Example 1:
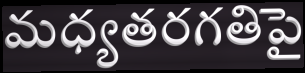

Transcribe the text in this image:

మధ్యతరగతిపై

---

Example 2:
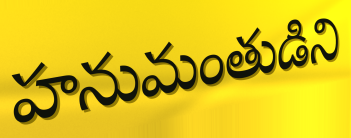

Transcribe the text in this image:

హనుమంతుడిని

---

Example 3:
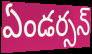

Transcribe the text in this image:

ఏండర్సన్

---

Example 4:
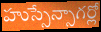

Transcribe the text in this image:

హుస్సేన్సాగర్లో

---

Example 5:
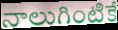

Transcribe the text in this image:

నాలుగింటికే